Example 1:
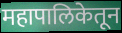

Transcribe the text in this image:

महापालिकेतून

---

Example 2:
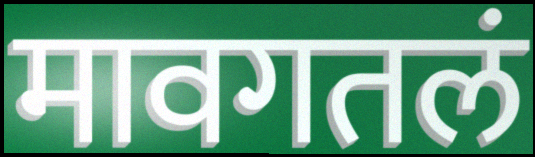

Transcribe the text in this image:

मावगतलं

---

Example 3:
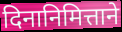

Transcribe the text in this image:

दिनानिमित्ताने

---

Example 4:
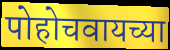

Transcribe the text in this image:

पोहोचवायच्या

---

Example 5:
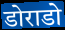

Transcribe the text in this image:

डोराडो